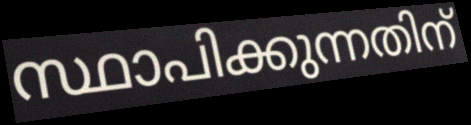
സ്ഥാപിക്കുന്നതിന്